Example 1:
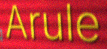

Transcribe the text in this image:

Arule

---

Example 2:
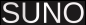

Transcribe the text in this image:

SUNO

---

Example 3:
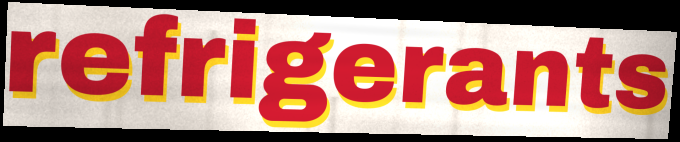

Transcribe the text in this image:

refrigerants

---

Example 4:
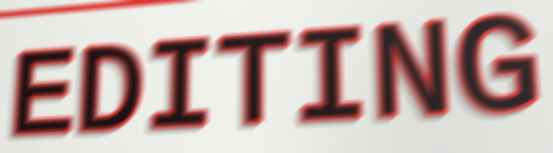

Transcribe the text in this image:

EDITING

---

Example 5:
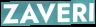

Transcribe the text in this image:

ZAVERI